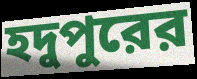
হদুপুরের